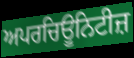
ਅਪਰਚਿਊਨਿਟੀਜ਼